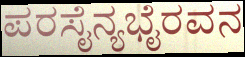
ಪರಸೈನ್ಯಭೈರವನ